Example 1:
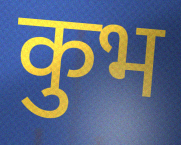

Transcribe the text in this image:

कुभ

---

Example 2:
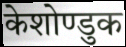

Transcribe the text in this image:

केशोण्डुक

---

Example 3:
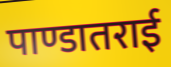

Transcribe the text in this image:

पाण्डातराई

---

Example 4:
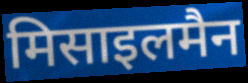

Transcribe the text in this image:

मिसाइलमैन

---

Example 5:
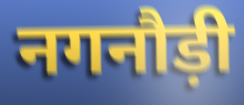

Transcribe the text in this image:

नगनौड़ी